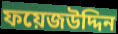
ফয়েজউদ্দিন